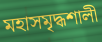
মহাসমৃদ্ধশালী